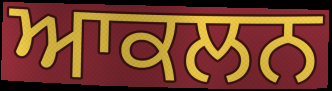
ਆਕਲਨ